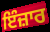
ਇੰਜ਼ਾਰ